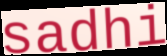
sadhi